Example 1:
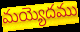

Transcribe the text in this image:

మయ్యెదము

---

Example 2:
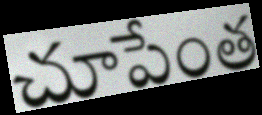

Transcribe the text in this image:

చూపేంత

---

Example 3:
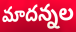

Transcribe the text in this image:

మాదన్నల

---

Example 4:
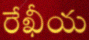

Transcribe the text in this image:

రేఖీయ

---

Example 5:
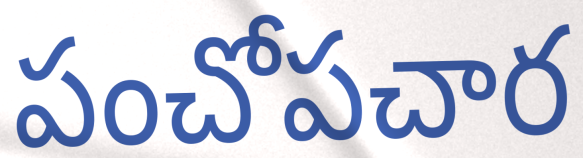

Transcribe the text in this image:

పంచోపచార